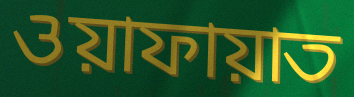
ওয়াফায়াত